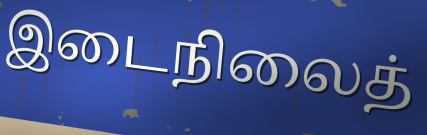
இடைநிலைத்